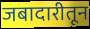
जबादारीतून